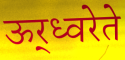
ऊर्ध्वरेते